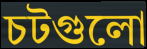
চটগুলো